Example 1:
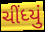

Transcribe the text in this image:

ચીંધ્યું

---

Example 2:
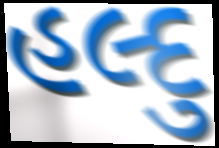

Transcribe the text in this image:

હલ્દુ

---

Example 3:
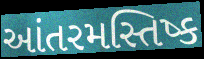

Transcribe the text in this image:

આંતરમસ્તિષ્ક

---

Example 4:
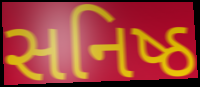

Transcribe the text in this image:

સનિષ્ઠ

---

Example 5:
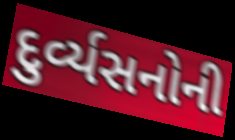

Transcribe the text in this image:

દુર્વ્યસનોની